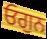
ਓਗੁਨ